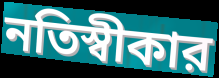
নতিস্বীকার